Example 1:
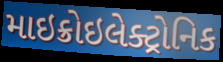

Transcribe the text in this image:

માઇક્રોઇલેક્ટ્રોનિક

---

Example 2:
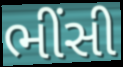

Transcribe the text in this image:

ભીંસી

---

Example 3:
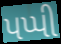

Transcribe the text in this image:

પપ્પી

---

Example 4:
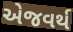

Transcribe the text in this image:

એજવર્થ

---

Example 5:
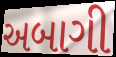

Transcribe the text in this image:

અબાગી